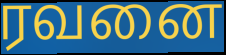
ரவனை